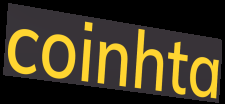
coinhta